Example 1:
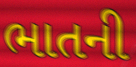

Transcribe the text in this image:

ભાતની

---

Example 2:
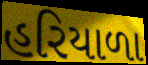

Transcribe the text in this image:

હરિયાળા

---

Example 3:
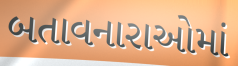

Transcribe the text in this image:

બતાવનારાઓમાં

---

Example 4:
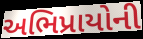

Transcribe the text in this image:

અભિપ્રાયોની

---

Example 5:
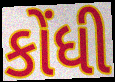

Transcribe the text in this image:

કોંધી